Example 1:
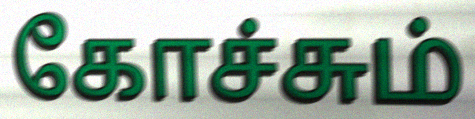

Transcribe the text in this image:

கோச்சும்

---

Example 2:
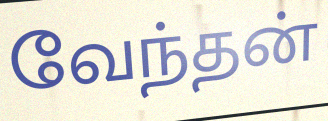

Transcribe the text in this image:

வேந்தன்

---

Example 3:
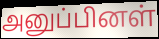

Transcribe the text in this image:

அனுப்பினள்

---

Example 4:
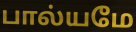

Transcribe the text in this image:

பால்யமே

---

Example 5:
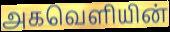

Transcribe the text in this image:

அகவெளியின்